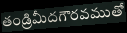
తండ్రిమీదగౌరవముతో